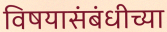
विषयासंबंधीच्या